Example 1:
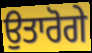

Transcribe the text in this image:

ਉਤਾਰੋਗੇ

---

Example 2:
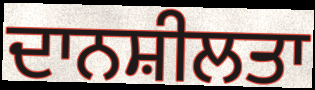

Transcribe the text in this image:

ਦਾਨਸ਼ੀਲਤਾ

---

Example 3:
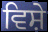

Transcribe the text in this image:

ਵਿਸ਼ੇ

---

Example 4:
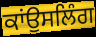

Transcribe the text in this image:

ਕਾਂਉਸਲਿੰਗ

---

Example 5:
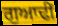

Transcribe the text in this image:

ਗੁਆਢੀਂ